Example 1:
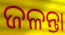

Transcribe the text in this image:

ଜଳନ୍ତା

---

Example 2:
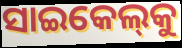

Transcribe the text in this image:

ସାଇକେଲ୍‌କୁ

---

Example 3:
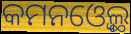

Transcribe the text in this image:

କମନଓ୍ବେଲ୍ଥ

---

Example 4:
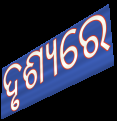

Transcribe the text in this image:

ଦୃଶ୍ୟରେ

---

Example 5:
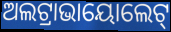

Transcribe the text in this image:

ଅଲଟ୍ରାଭାୟୋଲେଟ୍